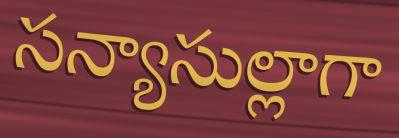
సన్యాసుల్లాగా